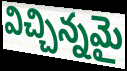
విచ్చిన్నమై